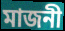
মাজনী